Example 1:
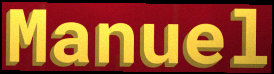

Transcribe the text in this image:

Manuel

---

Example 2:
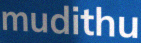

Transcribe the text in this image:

mudithu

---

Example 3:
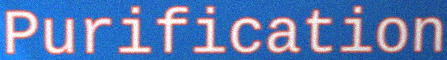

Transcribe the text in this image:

Purification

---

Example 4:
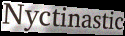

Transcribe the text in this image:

Nyctinastic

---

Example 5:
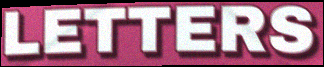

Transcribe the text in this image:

LETTERS